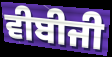
ਵੀਬੀਜੀ